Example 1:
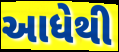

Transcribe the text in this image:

આધેથી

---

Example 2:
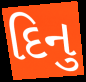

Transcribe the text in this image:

દિનુ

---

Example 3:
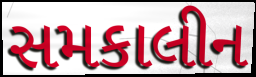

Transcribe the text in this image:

સમકાલીન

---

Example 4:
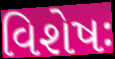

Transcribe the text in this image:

વિશેષઃ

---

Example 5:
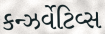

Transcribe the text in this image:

કન્ઝર્વેટિવ્સ